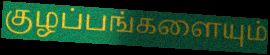
குழப்பங்களையும்